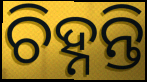
ଚିହ୍ନନ୍ତି